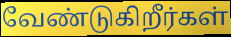
வேண்டுகிறீர்கள்